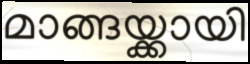
മാങ്ങയ്ക്കായി